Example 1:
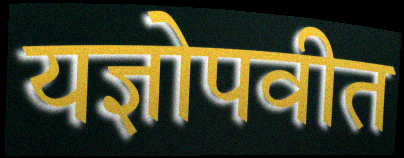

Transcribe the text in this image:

यज्ञोपवीत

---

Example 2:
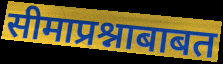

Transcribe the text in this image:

सीमाप्रश्नाबाबत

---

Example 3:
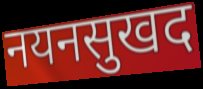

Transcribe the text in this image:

नयनसुखद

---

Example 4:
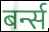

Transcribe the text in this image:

बर्न्स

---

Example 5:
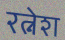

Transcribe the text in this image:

रत्नेश